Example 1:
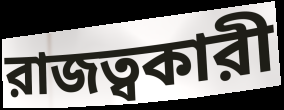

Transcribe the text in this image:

রাজত্বকারী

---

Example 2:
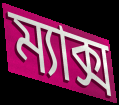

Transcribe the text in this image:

ম্যাক্স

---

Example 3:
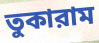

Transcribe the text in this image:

তুকারাম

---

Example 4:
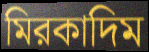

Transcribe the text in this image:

মিরকাদিম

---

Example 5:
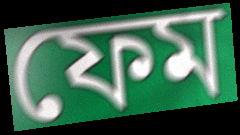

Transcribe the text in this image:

ফেম